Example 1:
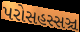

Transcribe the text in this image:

પરોસહસ્સઞ્ચ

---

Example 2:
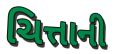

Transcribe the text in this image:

ચિત્તાની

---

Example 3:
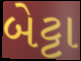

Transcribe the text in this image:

બેટ્ટા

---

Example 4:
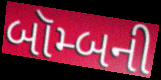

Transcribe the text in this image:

બૉમ્બની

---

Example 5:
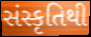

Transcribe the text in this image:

સંસ્કૃતિથી